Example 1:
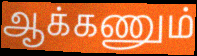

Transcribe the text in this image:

ஆக்கணும்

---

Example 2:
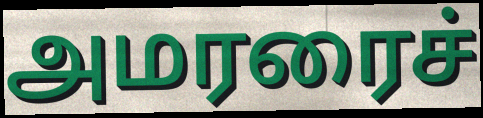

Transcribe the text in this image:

அமரரைச்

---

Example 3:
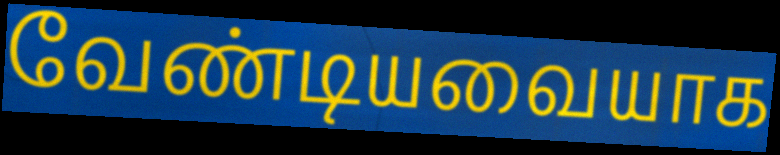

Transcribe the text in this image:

வேண்டியவையாக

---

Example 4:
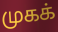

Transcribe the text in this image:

முகக்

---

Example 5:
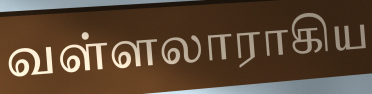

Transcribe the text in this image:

வள்ளலாராகிய